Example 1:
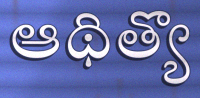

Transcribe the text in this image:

ఆథిత్యొ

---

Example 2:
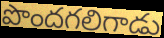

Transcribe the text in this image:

పొందగలిగాడు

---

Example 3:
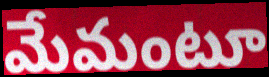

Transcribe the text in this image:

మేమంటూ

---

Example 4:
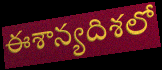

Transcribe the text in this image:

ఈశాన్యదిశలో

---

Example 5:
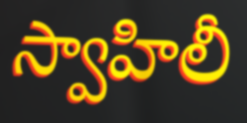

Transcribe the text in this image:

స్వాహిలీ